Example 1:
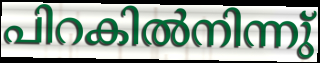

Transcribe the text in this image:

പിറകിൽനിന്നു്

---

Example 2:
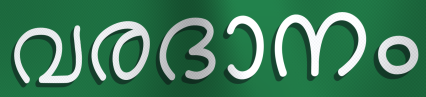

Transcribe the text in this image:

വരദാനം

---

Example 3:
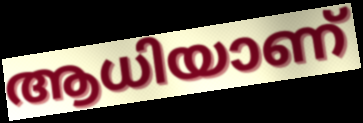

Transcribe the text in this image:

ആധിയാണ്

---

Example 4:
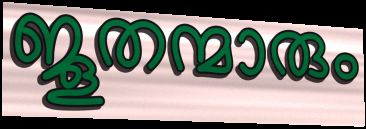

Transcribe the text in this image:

ജൂതന്മാരും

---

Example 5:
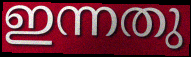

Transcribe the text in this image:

ഇന്നതു